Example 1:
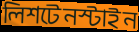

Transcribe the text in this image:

লিশটেনস্টাইন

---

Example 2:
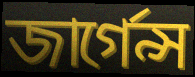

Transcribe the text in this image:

জার্গেন্স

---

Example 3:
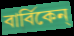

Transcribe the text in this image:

বার্বিকেন্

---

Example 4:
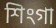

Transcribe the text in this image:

শিংগা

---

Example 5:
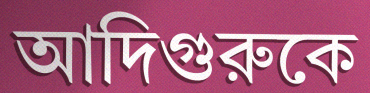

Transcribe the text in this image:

আদিগুরুকে